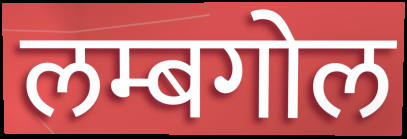
लम्बगोल